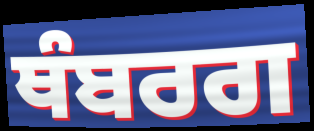
ਥੰਬਰਗ